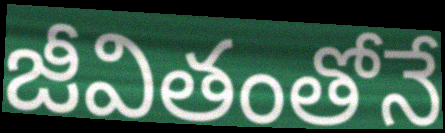
జీవితంతోనే